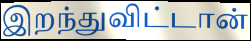
இறந்துவிட்டான்